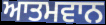
ਆਤਮਵਾਨ